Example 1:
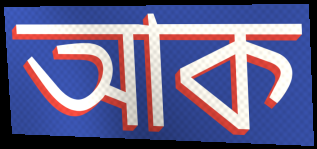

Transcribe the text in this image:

আক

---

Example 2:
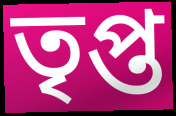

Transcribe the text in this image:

তৃপ্ত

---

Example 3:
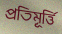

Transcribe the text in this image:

প্ৰতিমূৰ্ত্তি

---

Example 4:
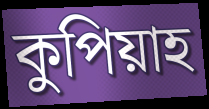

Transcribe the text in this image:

কুপিয়াহ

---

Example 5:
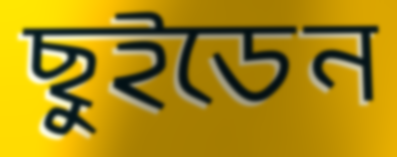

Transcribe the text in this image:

ছুইডেন